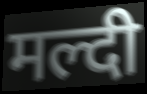
मल्दी